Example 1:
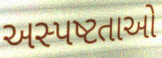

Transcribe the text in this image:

અસ્પષ્ટતાઓ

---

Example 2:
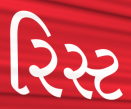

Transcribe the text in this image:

રિસ્ટ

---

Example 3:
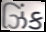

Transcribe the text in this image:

ઝિંક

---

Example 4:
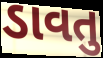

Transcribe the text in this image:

ડાવતુ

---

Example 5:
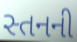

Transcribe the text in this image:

સ્તનની